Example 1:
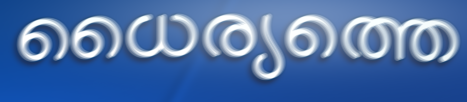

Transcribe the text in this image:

ധൈര്യത്തെ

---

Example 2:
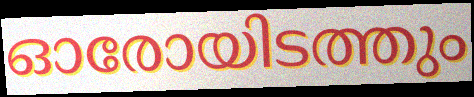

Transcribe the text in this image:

ഓരോയിടത്തും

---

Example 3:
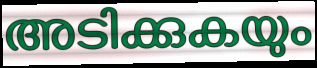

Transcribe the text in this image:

അടിക്കുകയും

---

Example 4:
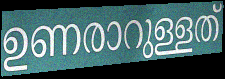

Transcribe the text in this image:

ഉണരാറുള്ളത്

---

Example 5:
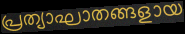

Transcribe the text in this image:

പ്രത്യാഘാതങ്ങളായ